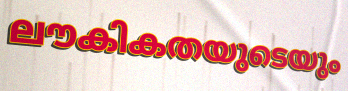
ലൗകികതയുടെയും